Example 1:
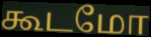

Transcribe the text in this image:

கூடமோ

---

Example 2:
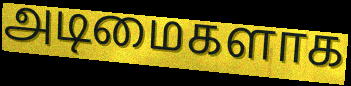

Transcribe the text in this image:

அடிமைகளாக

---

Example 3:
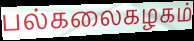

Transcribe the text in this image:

பல்கலைகழகம்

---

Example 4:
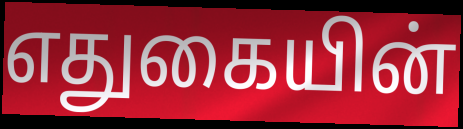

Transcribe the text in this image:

எதுகையின்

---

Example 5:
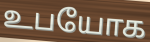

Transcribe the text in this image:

உபயோக